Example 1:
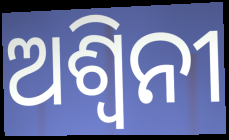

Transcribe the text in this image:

ଅଶ୍ୱିନୀ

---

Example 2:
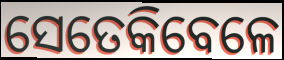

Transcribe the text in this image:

ସେତେକିବେଳେ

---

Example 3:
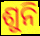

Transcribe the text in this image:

ଶୁନି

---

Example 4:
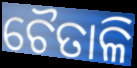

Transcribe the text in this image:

ଚୈତାଳି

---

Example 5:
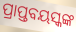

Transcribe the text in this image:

ପ୍ରାପ୍ତବୟସ୍କଙ୍କ